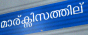
മാര്ക്സിസത്തില്